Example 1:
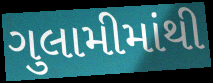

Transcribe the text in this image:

ગુલામીમાંથી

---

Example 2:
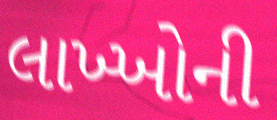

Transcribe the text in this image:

લાખ્ખોની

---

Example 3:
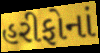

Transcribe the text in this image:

હરીફોનાં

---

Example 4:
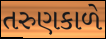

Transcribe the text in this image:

તરુણકાળે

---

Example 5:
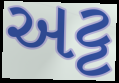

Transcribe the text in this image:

અટ્ટ